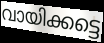
വായിക്കട്ടെ